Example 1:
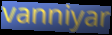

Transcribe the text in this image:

vanniyar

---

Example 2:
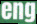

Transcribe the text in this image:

eng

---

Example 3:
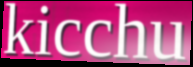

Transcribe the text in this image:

kicchu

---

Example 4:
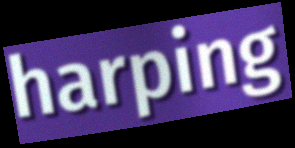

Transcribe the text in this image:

harping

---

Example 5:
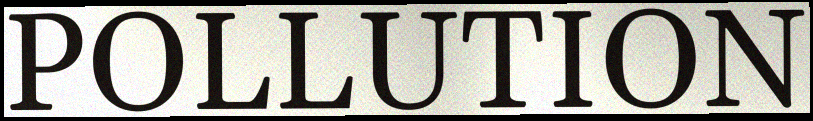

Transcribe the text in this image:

POLLUTION